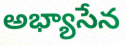
అభ్యాసేన